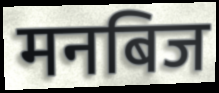
मनबिज